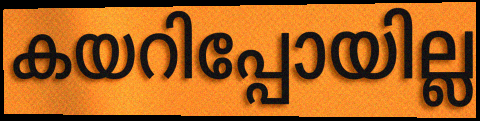
കയറിപ്പോയില്ല